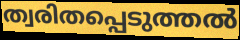
ത്വരിതപ്പെടുത്തൽ